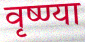
वृष्ण्या